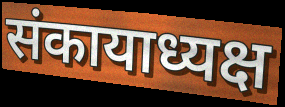
संकायाध्यक्ष